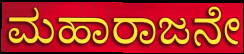
ಮಹಾರಾಜನೇ